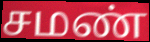
சமண்